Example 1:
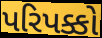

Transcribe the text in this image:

પરિપક્કો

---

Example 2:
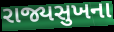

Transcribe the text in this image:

રાજ્યસુખના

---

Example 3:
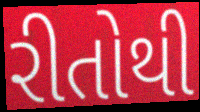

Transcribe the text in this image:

રીતોથી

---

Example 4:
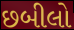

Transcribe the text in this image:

છબીલો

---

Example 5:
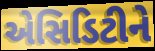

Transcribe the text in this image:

એસિડિટીને